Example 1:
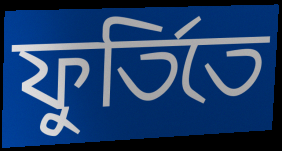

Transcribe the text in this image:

ফুর্তিতে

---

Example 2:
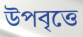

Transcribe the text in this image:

উপবৃত্তে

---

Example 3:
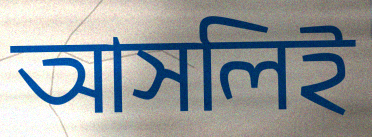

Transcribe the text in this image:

আসলিই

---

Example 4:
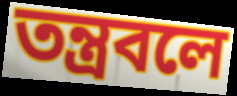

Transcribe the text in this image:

তন্ত্রবলে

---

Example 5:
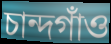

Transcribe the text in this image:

চান্দগাঁও